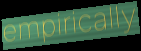
empirically